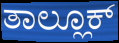
ತಾಲ್ಲೂಕ್